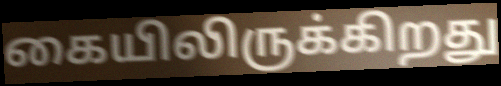
கையிலிருக்கிறது